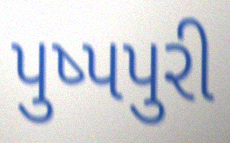
પુષ્પપુરી